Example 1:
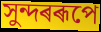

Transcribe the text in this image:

সুন্দৰৰূপে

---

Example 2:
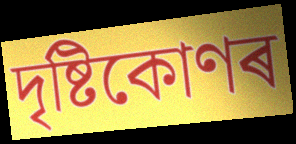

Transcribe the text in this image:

দৃষ্টিকোণৰ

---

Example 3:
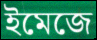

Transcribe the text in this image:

ইমেজে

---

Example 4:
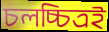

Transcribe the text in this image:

চলচ্চিত্ৰই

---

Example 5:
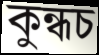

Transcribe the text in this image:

কুন্ধচ